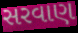
સરવાણ